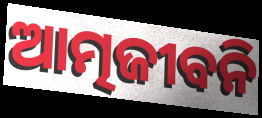
ଆତ୍ମଜୀବନି